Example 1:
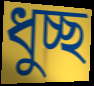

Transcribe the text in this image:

ধুচ্ছ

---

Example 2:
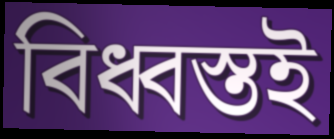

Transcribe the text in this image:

বিধ্বস্তই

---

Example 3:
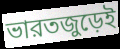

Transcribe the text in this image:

ভারতজুড়েই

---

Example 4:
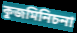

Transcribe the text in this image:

কুজমিনিচনা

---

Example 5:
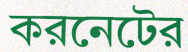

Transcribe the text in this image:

করনেটের